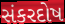
સંકરદોષ